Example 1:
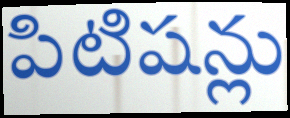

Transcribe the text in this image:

పిటిషన్లు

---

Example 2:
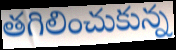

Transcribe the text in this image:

తగిలించుకున్న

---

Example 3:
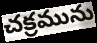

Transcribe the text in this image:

చక్రమును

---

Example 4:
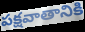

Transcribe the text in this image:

పక్షవాతానికి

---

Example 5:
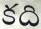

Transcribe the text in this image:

కది